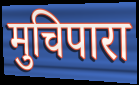
मुचिपारा